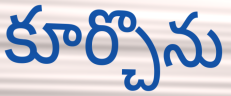
కూర్చొను